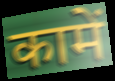
कामें